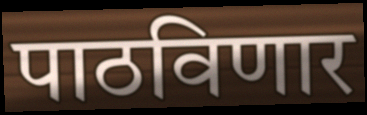
पाठविणार